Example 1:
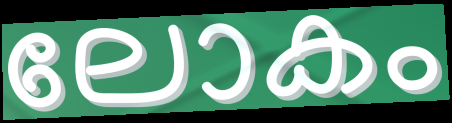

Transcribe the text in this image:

ലോകം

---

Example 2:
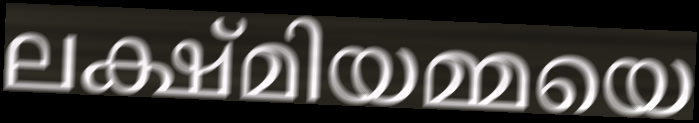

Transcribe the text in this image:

ലക്ഷ്മിയമ്മയെ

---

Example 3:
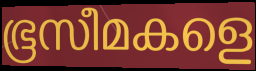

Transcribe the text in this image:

ഭൂസീമകളെ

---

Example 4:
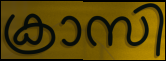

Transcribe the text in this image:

ക്രാസി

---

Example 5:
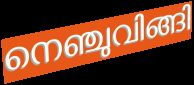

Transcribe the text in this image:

നെഞ്ചുവിങ്ങി